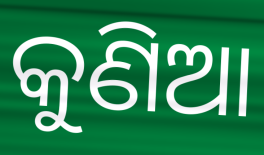
କୁଣିଆ